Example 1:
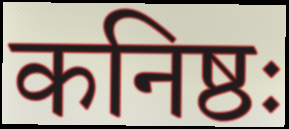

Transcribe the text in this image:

कनिष्ठः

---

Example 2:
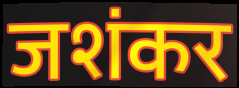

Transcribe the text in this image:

जशंकर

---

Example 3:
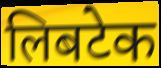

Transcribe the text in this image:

लिबटेक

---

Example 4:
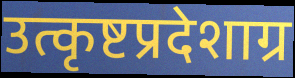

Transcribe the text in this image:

उत्कृष्टप्रदेशाग्र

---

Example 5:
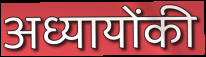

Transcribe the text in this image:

अध्यायोंकी